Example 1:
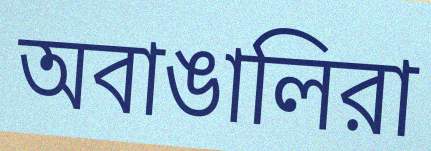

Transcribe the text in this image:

অবাঙালিরা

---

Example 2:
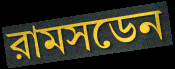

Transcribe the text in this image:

রামসডেন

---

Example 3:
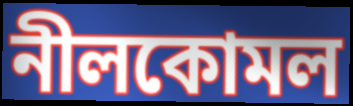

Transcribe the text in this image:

নীলকোমল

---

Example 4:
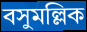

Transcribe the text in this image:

বসুমল্লিক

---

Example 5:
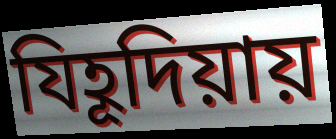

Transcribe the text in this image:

যিহূদিয়ায়